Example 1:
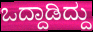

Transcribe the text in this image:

ಒದ್ದಾಡಿದ್ದು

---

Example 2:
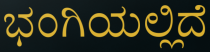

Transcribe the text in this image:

ಭಂಗಿಯಲ್ಲಿದೆ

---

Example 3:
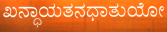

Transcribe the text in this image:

ಖನ್ಧಾಯತನಧಾತುಯೋ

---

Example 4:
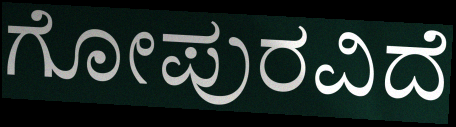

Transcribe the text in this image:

ಗೋಪುರವಿದೆ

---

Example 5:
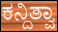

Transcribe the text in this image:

ಕನ್ದಿತ್ವಾ